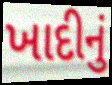
ખાદીનું